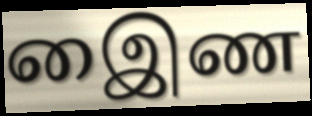
இைண